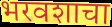
भरवशाचा